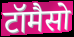
टॉमैसो